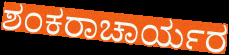
ಶಂಕರಾಚಾರ್ಯರ